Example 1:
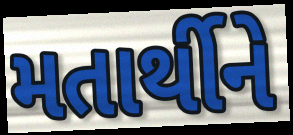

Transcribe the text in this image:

મતાર્થીને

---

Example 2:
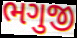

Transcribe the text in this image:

ભગુજી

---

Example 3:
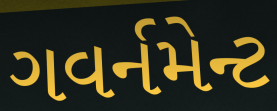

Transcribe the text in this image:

ગવર્નમેન્ટ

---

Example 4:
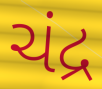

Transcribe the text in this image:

ચંદ્ર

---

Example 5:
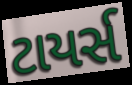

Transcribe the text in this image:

ટાયર્સ